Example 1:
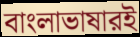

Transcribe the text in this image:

বাংলাভাষারই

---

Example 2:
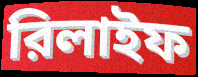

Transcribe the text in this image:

রিলাইফ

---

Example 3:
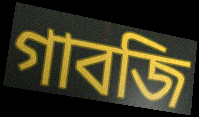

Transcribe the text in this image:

গাবজি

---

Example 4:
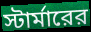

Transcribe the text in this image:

স্টার্মারের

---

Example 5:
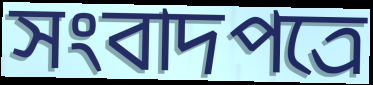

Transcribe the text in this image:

সংবাদপত্রে